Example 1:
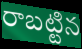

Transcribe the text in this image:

రాబట్టిన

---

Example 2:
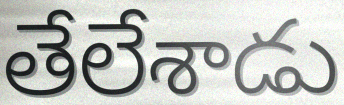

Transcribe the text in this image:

తేలేశాడు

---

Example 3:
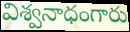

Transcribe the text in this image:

విశ్వనాధంగారు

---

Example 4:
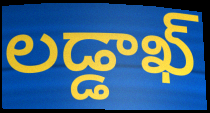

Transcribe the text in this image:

లడ్డాఖ్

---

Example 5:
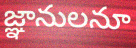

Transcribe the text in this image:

జ్ఞానులనూ